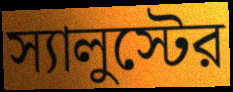
স্যালুস্টের